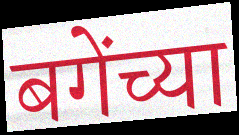
बगेंच्या